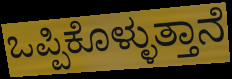
ಒಪ್ಪಿಕೊಳ್ಳುತ್ತಾನೆ